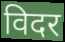
विदर